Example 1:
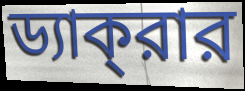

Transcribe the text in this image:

ড্যাক্‌রার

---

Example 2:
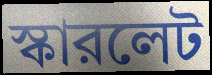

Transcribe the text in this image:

স্কারলেট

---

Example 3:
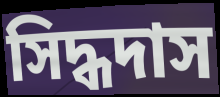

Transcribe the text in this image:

সিদ্ধদাস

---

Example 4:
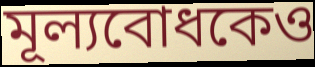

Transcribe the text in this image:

মূল্যবোধকেও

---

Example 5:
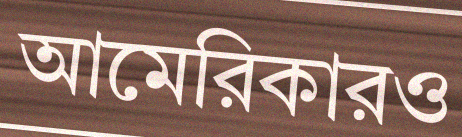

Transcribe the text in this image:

আমেরিকারও